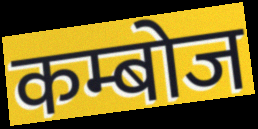
कम्बोज